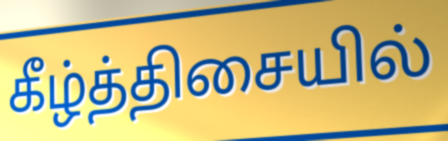
கீழ்த்திசையில்